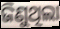
ଜିଣୁଥିଲା